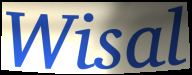
Wisal